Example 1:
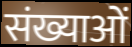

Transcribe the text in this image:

संख्याओं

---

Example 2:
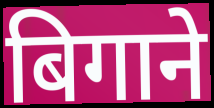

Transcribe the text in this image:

बिगाने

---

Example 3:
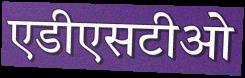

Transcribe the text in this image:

एडीएसटीओ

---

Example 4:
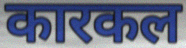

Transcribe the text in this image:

कारकल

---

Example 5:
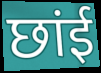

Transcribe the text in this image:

छांई